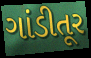
ગાંડીતૂર